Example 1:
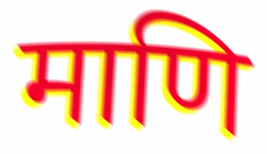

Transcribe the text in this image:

माणि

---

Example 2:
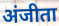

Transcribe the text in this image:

अंजीता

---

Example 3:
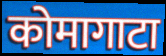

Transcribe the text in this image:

कोमागाटा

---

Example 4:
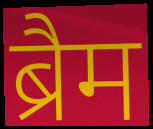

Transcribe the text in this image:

ब्रैम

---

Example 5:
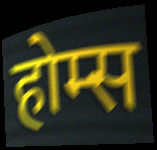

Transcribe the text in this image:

होम्स